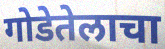
गोडेतेलाचा